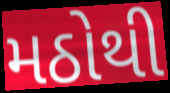
મઠોથી